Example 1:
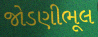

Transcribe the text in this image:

જોડણીભૂલ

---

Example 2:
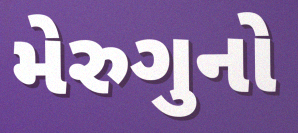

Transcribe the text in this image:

મેરુગુનો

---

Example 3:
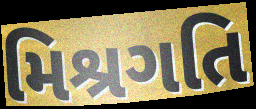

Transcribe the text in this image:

મિશ્રગતિ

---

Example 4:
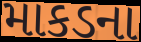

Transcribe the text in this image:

માકડના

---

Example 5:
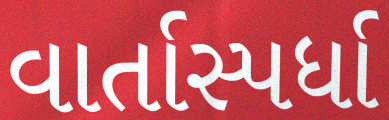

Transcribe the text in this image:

વાર્તાસ્પર્ધા